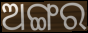
ଅଙ୍ଗର